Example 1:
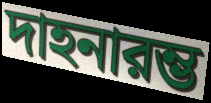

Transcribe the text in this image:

দাহনারম্ভ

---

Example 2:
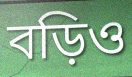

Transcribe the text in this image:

বড়িও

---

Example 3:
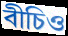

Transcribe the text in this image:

বীচিও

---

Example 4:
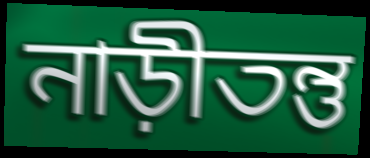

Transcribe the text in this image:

নাড়ীতন্তু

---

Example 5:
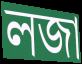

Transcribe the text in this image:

লজা